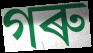
গৰু